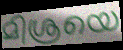
മിശ്രയെ